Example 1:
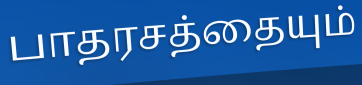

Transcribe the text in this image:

பாதரசத்தையும்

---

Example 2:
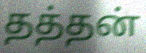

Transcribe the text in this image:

தத்தன்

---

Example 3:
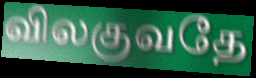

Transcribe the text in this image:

விலகுவதே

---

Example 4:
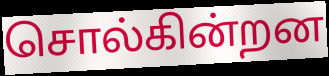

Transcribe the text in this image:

சொல்கின்றன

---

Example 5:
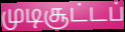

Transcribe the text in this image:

முடிசூட்டப்